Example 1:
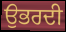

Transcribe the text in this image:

ਉਭਰਦੀ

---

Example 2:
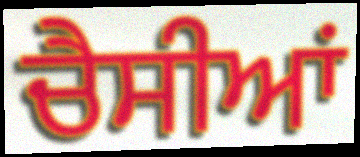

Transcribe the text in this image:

ਚੈਸੀਆਂ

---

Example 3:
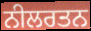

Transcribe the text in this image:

ਨੀਲਰਤਨ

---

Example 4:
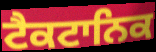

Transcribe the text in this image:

ਟੈਕਟਾਨਿਕ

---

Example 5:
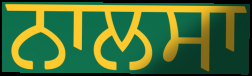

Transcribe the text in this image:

ਨਾਲਸਾ